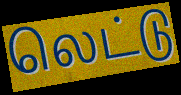
லெட்டு